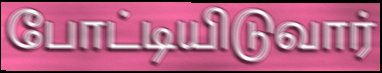
போட்டியிடுவார்